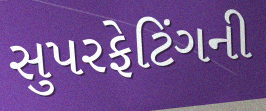
સુપરફેટિંગની